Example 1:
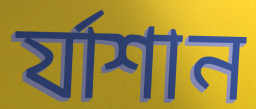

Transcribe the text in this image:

র্যাশান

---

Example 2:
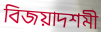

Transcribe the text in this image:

বিজয়াদশমী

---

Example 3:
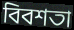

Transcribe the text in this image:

বিবশতা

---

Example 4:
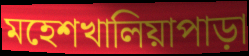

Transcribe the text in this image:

মহেশখালিয়াপাড়া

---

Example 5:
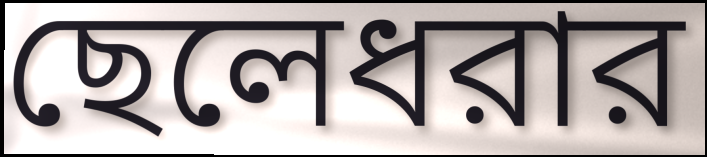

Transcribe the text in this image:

ছেলেধরার